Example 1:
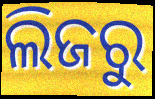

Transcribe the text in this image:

ଲିଜରୁ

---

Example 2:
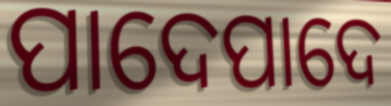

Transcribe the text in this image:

ପାଦେପାଦେ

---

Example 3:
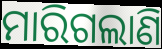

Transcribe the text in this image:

ମାରିଗଲାଣି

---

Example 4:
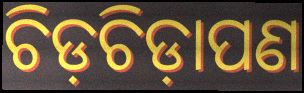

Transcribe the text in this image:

ଚିଡ଼ଚିଡ଼ାପଣ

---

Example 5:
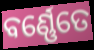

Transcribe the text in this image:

ବର୍ଣ୍ଣେତେ